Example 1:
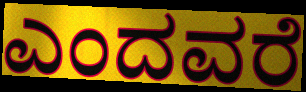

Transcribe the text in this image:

ಎಂದವರೆ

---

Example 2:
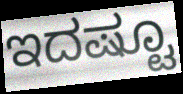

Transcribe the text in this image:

ಇದಷ್ಟೂ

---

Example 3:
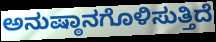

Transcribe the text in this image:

ಅನುಷ್ಠಾನಗೊಳಿಸುತ್ತಿದೆ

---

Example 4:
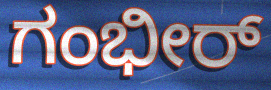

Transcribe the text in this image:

ಗಂಭೀರ್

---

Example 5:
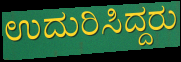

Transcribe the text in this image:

ಉದುರಿಸಿದ್ದರು